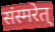
संस्मरेत्